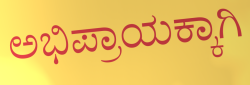
ಅಭಿಪ್ರಾಯಕ್ಕಾಗಿ